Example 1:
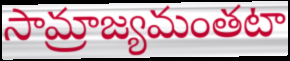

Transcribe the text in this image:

సామ్రాజ్యమంతటా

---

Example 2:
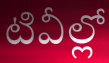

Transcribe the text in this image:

టివీల్లో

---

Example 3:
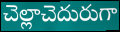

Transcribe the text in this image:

చెల్లాచెదురుగా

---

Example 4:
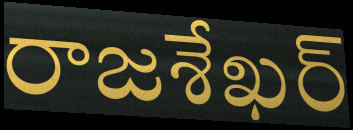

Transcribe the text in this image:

రాజశేఖర్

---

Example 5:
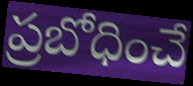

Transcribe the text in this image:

ప్రబోధించే